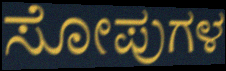
ಸೋಪುಗಳ